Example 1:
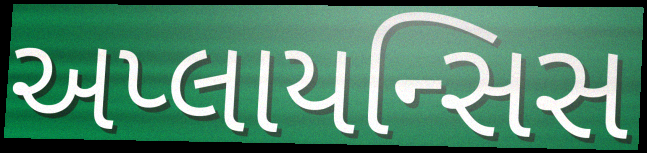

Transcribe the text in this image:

અપ્લાયન્સિસ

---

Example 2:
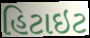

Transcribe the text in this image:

હિટાઇટ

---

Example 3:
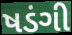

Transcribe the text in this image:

ષડંગી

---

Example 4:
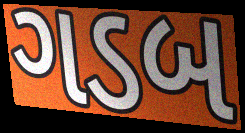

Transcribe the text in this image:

ગડબ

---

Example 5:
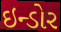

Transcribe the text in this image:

ઇન્ડોર